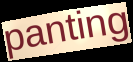
panting